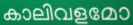
കാലിവളമോ